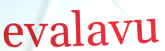
evalavu